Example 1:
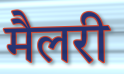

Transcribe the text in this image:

मैलरी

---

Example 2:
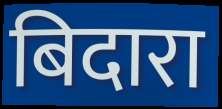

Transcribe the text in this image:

बिदारा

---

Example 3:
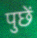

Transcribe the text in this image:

पुछें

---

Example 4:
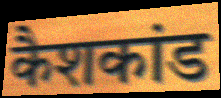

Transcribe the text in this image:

कैशकांड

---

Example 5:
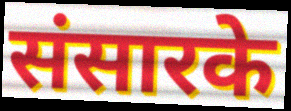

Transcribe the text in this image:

संसारके